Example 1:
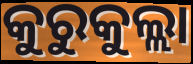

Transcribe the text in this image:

କୁରୁକୁଲ୍ଲା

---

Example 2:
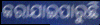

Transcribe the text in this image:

କରାଯାଇପାରୁଛି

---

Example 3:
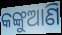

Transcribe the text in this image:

କଙ୍କୁଆଣି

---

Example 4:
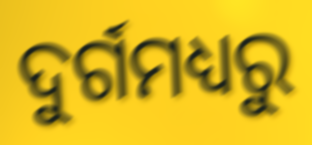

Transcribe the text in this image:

ଦୁର୍ଗମଧ୍ୟରୁ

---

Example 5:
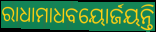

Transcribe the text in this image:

ରାଧାମାଧବୟୋର୍ଜୟନ୍ତି